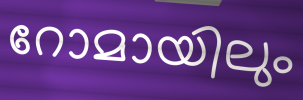
റോമായിലും